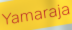
Yamaraja